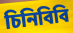
চিনিবিবি